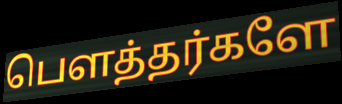
பௌத்தர்களே